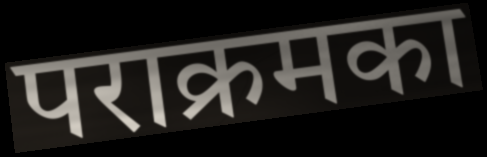
पराक्रमका